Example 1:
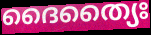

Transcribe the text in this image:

ദൈത്യൈഃ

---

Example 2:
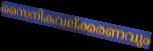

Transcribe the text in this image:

സൈനികവല്ക്കരണവും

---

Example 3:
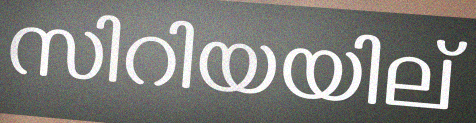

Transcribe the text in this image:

സിറിയയില്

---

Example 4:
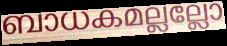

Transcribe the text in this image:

ബാധകമല്ലല്ലോ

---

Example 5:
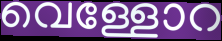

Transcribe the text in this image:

വെള്ളോറ